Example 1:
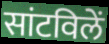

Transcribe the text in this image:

सांटविलें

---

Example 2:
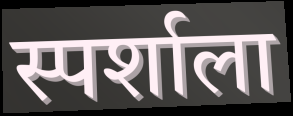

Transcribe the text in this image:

स्पर्शाला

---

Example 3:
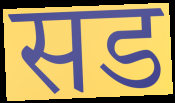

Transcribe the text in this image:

सड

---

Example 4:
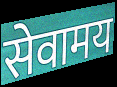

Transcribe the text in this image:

सेवामय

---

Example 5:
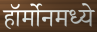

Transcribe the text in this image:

हॉर्मोनमध्ये